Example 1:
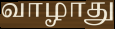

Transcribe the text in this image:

வாழாது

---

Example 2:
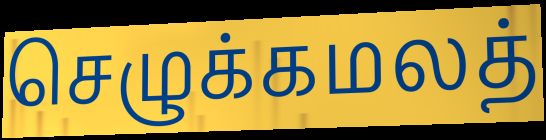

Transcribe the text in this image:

செழுக்கமலத்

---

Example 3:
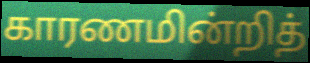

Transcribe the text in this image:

காரணமின்றித்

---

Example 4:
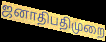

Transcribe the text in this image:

ஜனாதிபதிமுறை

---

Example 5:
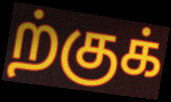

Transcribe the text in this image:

ற்குக்